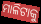
ମାଳିଟାକୁ